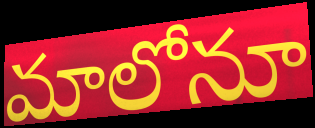
మాలోనూ